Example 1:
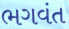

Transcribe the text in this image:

ભગવંત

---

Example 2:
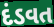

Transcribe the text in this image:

દંડવત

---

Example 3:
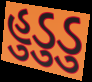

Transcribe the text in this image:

હુડુડુ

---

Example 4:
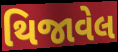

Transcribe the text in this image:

થિજાવેલ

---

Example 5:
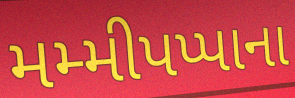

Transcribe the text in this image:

મમ્મીપપ્પાના